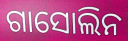
ଗାସୋଲିନ